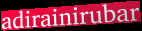
adirainirubar